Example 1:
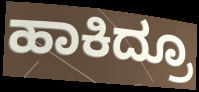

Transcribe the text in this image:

ಹಾಕಿದ್ರೂ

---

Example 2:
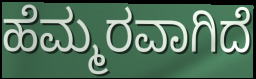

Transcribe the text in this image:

ಹೆಮ್ಮರವಾಗಿದೆ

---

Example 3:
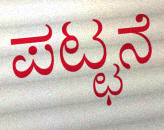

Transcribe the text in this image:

ಪಟ್ಟನೆ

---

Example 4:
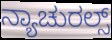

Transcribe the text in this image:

ನ್ಯಾಚುರಲ್ಸ್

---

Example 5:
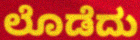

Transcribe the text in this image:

ಲೊಡೆದು